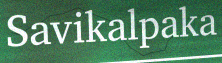
Savikalpaka